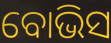
ବୋଭିସ